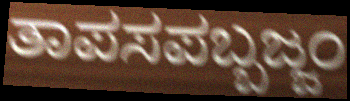
ತಾಪಸಪಬ್ಬಜ್ಜಂ